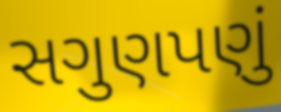
સગુણપણું